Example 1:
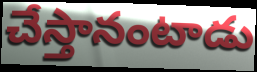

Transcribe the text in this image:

చేస్తానంటాడు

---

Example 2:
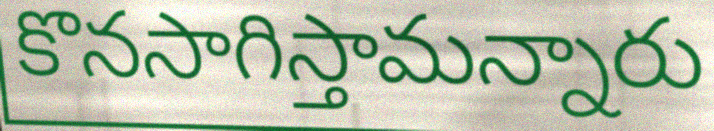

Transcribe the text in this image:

కొనసాగిస్తామన్నారు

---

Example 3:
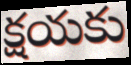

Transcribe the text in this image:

క్షయకు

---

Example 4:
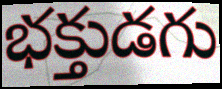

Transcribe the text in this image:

భక్తుడగు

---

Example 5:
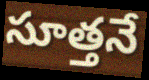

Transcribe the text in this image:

సూత్తనే